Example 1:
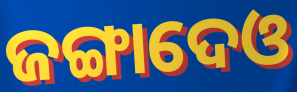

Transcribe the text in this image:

ଜଙ୍ଗାଦେଓ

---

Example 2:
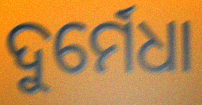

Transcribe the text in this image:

ଦୁର୍ମେଧା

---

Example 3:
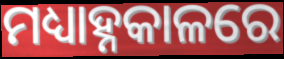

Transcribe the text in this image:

ମଧ୍ୟାହ୍ନକାଳରେ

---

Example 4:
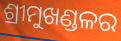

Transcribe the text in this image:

ଶ୍ରୀମୁଖଣ୍ଡଳର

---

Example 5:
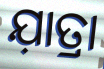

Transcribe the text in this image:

ଯ଼ାତ୍ରା